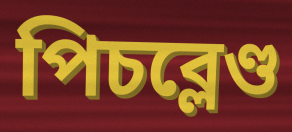
পিচব্লেণ্ড